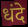
धंदे